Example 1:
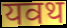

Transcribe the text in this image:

यवथ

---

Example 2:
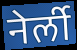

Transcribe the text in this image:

नेर्ली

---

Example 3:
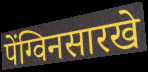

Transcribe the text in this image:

पेंग्विनसारखे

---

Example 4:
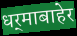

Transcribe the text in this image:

धर्माबाहेर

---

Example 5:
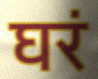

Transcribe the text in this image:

घरं